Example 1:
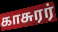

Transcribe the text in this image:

காசுரர்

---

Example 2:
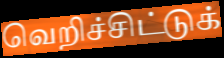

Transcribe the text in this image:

வெறிச்சிட்டுக்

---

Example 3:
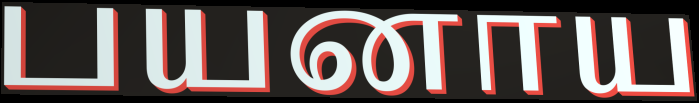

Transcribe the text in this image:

பயனாய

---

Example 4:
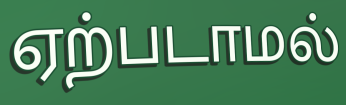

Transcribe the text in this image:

ஏற்படாமல்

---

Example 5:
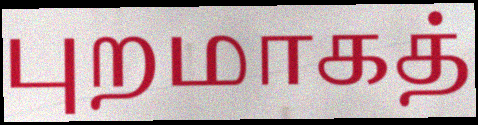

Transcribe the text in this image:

புறமாகத்